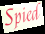
Spied